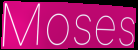
Moses